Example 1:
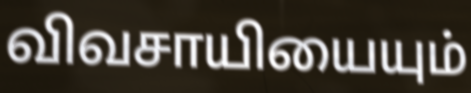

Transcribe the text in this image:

விவசாயியையும்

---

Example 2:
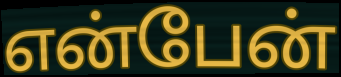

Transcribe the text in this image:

என்பேன்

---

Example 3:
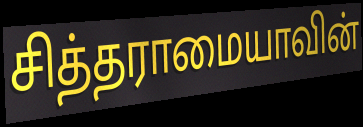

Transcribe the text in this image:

சித்தராமையாவின்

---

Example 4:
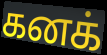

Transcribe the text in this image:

கனக்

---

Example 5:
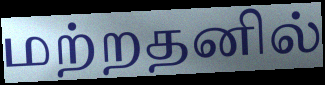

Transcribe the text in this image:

மற்றதனில்